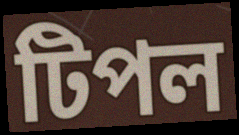
টিপল